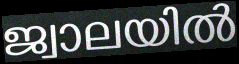
ജ്വാലയിൽ